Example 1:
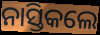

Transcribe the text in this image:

ନାସ୍ତିକଲେ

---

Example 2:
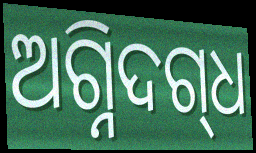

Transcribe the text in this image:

ଅଗ୍ନିଦଗ୍‌ଧ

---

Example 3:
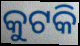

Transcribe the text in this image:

କୁଟକି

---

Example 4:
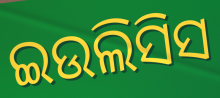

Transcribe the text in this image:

ଇଉଲିସିସ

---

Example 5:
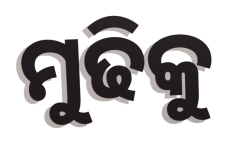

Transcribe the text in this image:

ମୁଢିକୁ